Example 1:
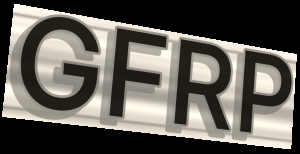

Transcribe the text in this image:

GFRP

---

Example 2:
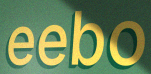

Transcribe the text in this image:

eebo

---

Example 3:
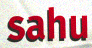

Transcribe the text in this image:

sahu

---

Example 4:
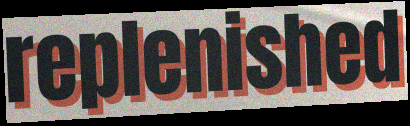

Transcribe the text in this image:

replenished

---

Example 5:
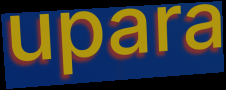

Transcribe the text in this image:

upara